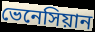
ভেনেসিয়ান